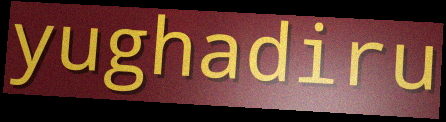
yughadiru